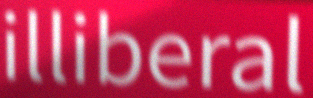
illiberal